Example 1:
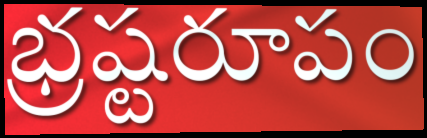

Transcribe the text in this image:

భ్రష్టరూపం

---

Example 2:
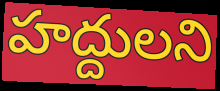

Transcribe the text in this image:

హద్దులని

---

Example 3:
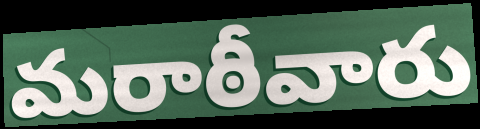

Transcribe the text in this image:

మరాఠీవారు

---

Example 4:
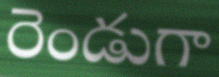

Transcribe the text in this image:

రెండుగా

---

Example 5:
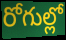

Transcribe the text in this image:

రోగుల్లో